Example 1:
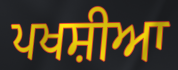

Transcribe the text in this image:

ਪਖਸ਼ੀਆ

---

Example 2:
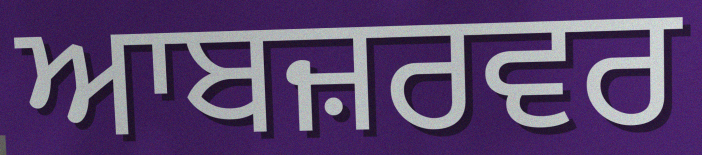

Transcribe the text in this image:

ਆਬਜ਼ਰਵਰ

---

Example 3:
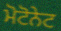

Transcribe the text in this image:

ਮੋਟੋਨੇਟ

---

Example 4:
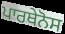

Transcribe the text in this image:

ਪਾਰਥੇਨੋਸ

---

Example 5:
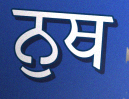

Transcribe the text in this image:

ਨੁਥ